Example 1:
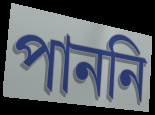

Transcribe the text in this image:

পাননি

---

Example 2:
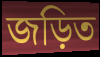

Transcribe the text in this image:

জড়িত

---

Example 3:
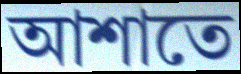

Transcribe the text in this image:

আশাতে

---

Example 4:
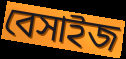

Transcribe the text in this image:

বেসাইজ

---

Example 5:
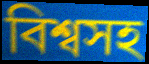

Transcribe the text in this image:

বিশ্বসহ